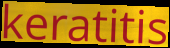
keratitis